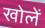
खोलें